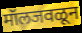
मॉलजवळून